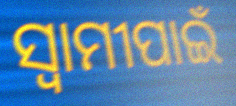
ସ୍ୱାମୀପାଇଁ